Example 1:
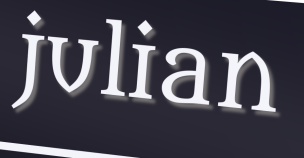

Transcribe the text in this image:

julian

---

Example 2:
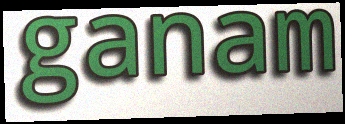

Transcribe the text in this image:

ganam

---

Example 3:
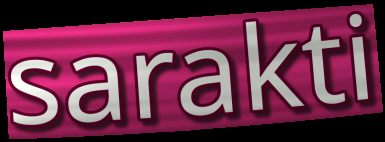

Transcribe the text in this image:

sarakti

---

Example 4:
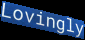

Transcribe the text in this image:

Lovingly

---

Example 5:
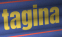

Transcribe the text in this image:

tagina